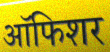
ऑफिशर